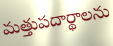
మత్తుపదార్థాలను